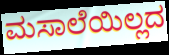
ಮಸಾಲೆಯಿಲ್ಲದ